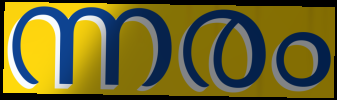
ന്നരം